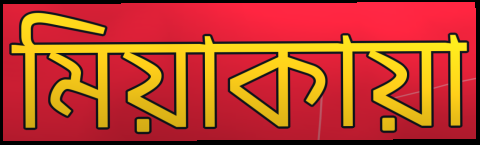
মিয়াকায়া